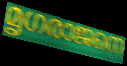
മൃഗരാജനെ